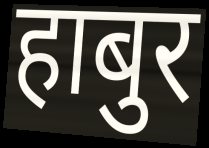
हाबुर